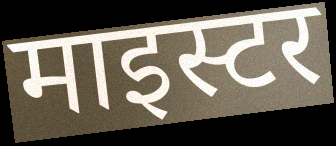
माइस्टर